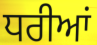
ਧਰੀਆਂ